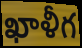
ఖాళీగ